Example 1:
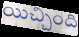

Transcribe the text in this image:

యిచ్చింది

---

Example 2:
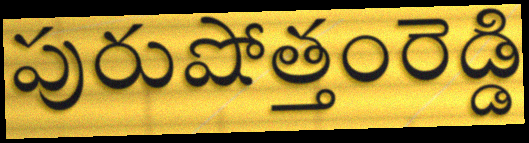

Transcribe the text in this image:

పురుషోత్తంరెడ్డి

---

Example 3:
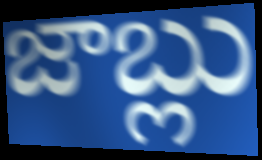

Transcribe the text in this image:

జాబ్లు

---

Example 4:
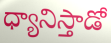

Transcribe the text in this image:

ధ్యానిస్తాడో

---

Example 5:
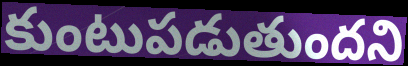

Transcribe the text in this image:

కుంటుపడుతుందని